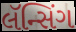
લૅન્સિંગ